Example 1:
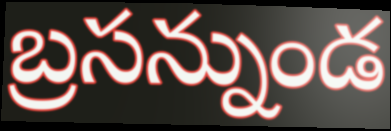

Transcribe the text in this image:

బ్రసన్నుండ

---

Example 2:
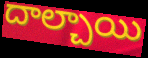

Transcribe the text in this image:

దాల్చాయి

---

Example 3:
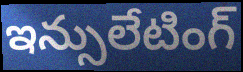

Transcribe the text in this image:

ఇన్సులేటింగ్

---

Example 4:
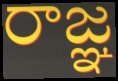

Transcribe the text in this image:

రాజ్ఞ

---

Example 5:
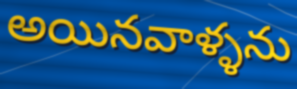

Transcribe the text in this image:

అయినవాళ్ళను